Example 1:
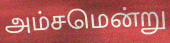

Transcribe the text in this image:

அம்சமென்று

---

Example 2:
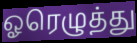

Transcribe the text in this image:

ஓரெழுத்து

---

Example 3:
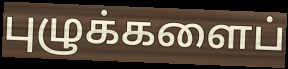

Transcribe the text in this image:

புழுக்களைப்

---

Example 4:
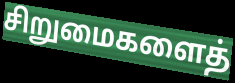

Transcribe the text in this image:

சிறுமைகளைத்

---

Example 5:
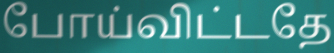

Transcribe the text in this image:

போய்விட்டதே